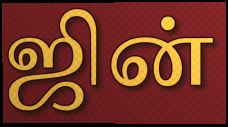
ஜின்